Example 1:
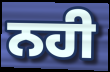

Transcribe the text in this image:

ਨਹੀ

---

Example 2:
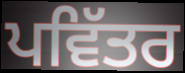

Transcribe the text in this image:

ਪਵਿੱਤਰ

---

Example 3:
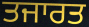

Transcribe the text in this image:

ਤਜਾਰਤ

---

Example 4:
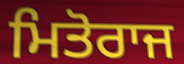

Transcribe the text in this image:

ਮਿਤੋਰਾਜ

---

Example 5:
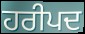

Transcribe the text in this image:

ਹਰੀਪਦ